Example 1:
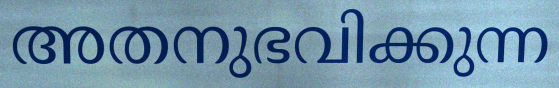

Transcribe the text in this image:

അതനുഭവിക്കുന്ന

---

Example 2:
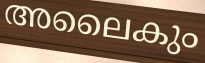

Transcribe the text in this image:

അലൈകും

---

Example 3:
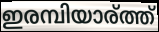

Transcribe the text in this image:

ഇരമ്പിയാര്ത്ത്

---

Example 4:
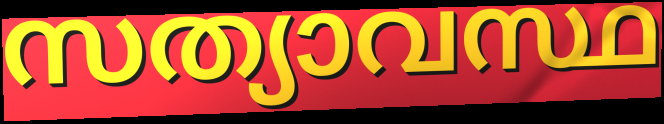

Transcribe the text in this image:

സത്യാവസ്ഥ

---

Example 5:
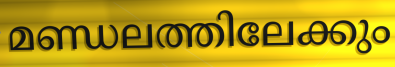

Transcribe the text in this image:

മണ്ഡലത്തിലേക്കും